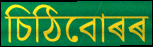
চিঠিবোৰৰ